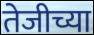
तेजीच्या